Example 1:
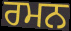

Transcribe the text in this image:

ਰਮਨ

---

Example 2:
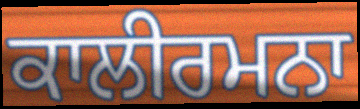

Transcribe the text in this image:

ਕਾਲੀਰਮਨਾ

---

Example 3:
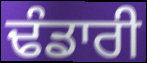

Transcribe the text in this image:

ਢੰਡਾਰੀ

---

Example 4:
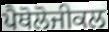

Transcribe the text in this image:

ਪੈਥੋਲੋਜੀਕਲ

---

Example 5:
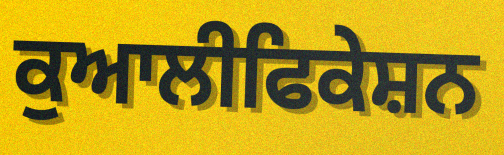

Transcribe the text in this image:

ਕੁਆਲੀਫਿਕੇਸ਼ਨ